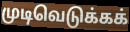
முடிவெடுக்கக்